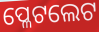
ପ୍ଳେଟଲେଟ